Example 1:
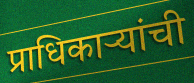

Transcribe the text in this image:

प्राधिकाऱ्यांची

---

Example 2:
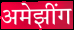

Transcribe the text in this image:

अमेझींग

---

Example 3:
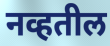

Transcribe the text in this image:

नव्हतील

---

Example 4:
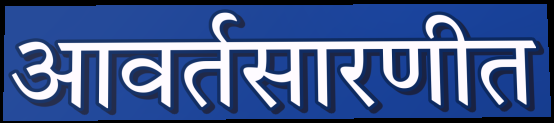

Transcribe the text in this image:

आवर्तसारणीत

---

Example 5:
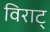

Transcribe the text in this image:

विराट्